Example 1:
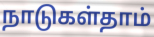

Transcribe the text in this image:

நாடுகள்தாம்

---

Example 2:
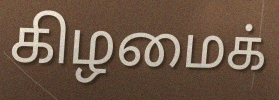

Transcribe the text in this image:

கிழமைக்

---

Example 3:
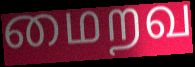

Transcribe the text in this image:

மைறவ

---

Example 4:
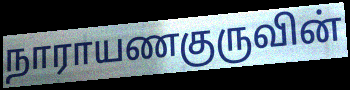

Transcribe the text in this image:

நாராயணகுருவின்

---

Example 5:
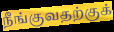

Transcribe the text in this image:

நீங்குவதற்குக்